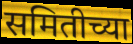
समितीच्‍या